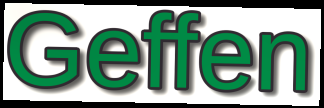
Geffen